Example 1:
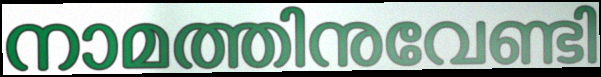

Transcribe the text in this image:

നാമത്തിനുവേണ്ടി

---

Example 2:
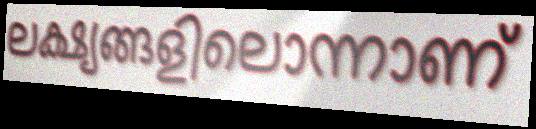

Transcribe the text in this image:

ലക്ഷ്യങ്ങളിലൊന്നാണ്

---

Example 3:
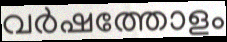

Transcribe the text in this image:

വർഷത്തോളം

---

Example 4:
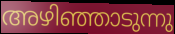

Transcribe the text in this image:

അഴിഞ്ഞാടുന്നു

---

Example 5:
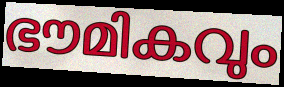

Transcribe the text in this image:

ഭൗമികവും